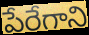
పేరేగాని